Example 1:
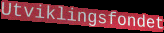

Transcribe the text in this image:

Utviklingsfondet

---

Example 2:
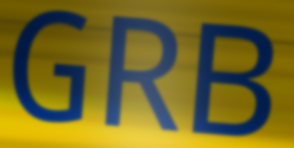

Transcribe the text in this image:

GRB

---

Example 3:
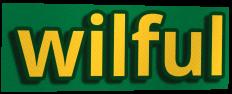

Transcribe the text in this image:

wilful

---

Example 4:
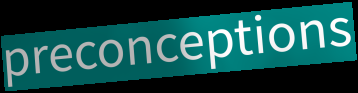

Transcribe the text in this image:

preconceptions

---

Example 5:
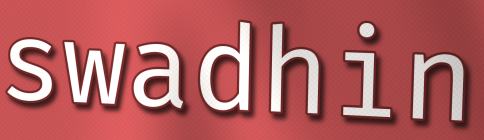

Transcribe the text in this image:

swadhin